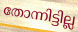
തോന്നിട്ടില്ല